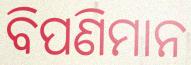
ବିପଣିମାନ